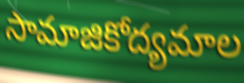
సామాజికోద్యమాల